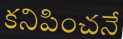
కనిపించనే